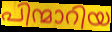
പിന്മാറിയ